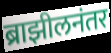
ब्राझीलनंतर